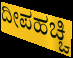
ದೀಪಹಚ್ಚಿ